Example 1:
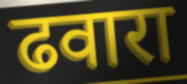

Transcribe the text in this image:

ढवारा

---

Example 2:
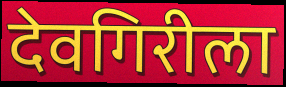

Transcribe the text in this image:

देवगिरीला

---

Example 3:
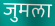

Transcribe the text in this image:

जुमला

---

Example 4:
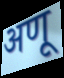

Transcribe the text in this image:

अणू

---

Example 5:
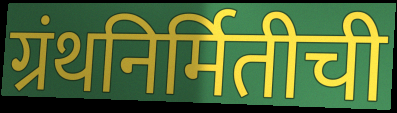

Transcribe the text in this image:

ग्रंथनिर्मितीची